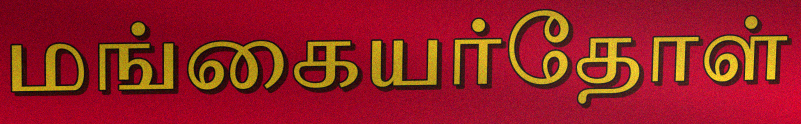
மங்கையர்தோள்